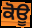
ਕੋਊ